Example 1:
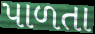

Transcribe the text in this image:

પાળતા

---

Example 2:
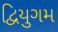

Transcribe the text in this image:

દ્વિયુગમ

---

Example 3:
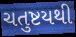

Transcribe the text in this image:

ચતુષ્ટયથી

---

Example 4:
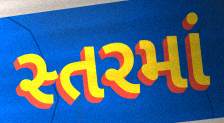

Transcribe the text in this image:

સ્તરમાં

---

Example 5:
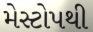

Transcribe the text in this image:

મેસ્ટોપથી